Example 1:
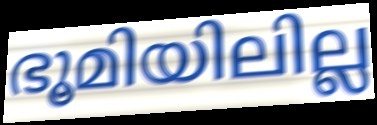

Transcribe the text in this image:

ഭൂമിയിലില്ല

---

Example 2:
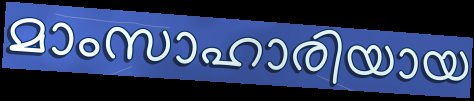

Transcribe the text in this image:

മാംസാഹാരിയായ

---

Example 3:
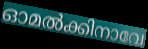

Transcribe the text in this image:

ഓമൽക്കിനാവേ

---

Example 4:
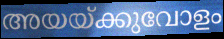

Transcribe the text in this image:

അയയ്ക്കുവോളം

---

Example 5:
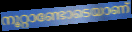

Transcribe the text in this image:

നൂറ്റാണ്ടോടെയാണ്